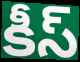
కీస్